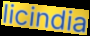
licindia